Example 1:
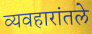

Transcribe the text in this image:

व्यवहारांतले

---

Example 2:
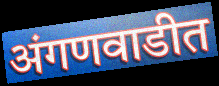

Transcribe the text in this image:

अंगणवाडीत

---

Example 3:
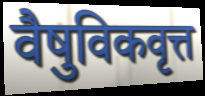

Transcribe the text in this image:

वैषुविकवृत्त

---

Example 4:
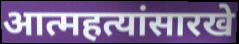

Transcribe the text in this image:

आत्महत्यांसारखे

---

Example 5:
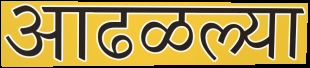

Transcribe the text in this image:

आढळल्या